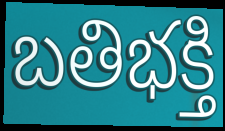
బతిభక్తి